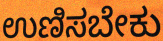
ಉಣಿಸಬೇಕು